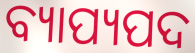
ବ୍ୟାପ୍ୟପଦ